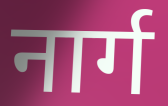
नार्ग